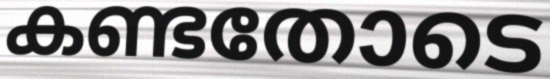
കണ്ടതോടെ